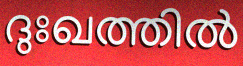
ദുഃഖത്തിൽ